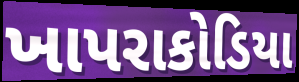
ખાપરાકોડિયા